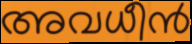
അവധീൻ